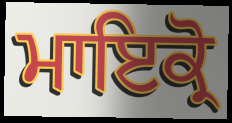
ਮਾਇਕ੍ਰੋ